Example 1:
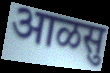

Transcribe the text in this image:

आळसु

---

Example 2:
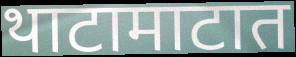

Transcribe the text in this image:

थाटामाटात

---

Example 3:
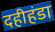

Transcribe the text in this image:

दहीहंडा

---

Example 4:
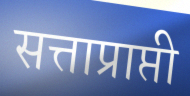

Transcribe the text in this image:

सत्ताप्राप्ती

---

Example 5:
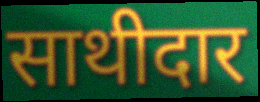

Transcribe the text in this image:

साथीदार